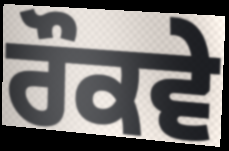
ਰੌਕਵੇ